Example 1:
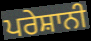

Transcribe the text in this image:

ਪਰੇਸ਼ਾਨੀ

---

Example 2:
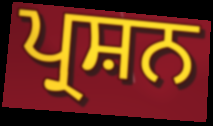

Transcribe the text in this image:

ਪ੍ਰਸ਼ਨ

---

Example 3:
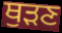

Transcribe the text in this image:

ਥੁੜਣ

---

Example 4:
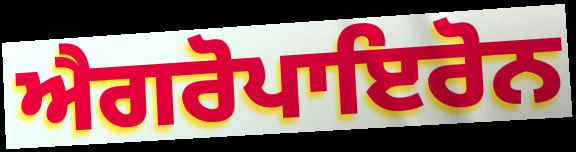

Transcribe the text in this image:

ਐਗਰੋਪਾਇਰੋਨ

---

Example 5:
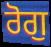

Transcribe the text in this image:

ਰੋਗੁ